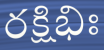
రక్షిభిః